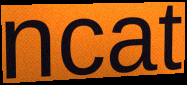
ncat